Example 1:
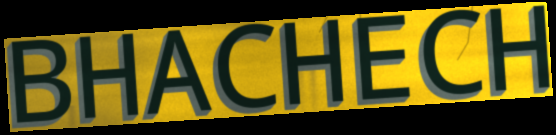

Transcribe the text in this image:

BHACHECH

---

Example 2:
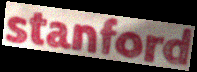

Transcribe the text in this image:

stanford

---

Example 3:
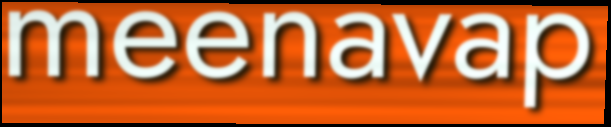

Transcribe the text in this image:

meenavap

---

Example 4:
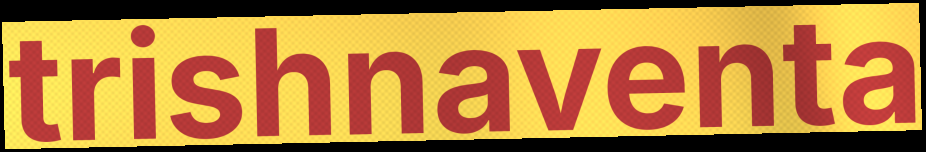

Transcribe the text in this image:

trishnaventa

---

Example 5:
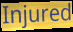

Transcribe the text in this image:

Injured